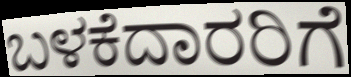
ಬಳಕೆದಾರರಿಗೆ